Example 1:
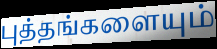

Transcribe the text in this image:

புத்தங்களையும்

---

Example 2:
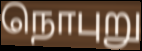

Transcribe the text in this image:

நொபுறு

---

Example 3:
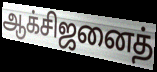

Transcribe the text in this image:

ஆக்சிஜனைத்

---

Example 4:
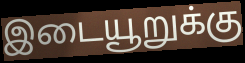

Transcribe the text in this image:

இடையூறுக்கு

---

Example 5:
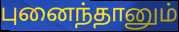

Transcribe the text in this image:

புனைந்தானும்